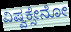
ವಿಷ್ವಕ್ಸೇನೋ